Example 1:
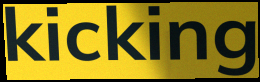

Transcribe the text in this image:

kicking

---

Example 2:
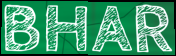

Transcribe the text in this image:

BHAR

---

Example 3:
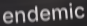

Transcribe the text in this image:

endemic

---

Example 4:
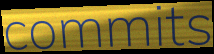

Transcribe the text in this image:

commits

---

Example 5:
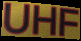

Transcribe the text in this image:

UHF